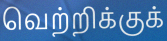
வெற்றிக்குக்